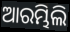
ଆରମ୍ଭିଲି